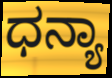
ಧನ್ಯಾ